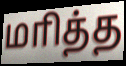
மரித்த